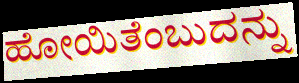
ಹೋಯಿತೆಂಬುದನ್ನು